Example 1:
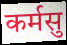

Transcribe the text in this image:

कर्मसु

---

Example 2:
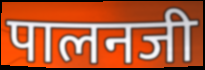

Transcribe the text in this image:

पालनजी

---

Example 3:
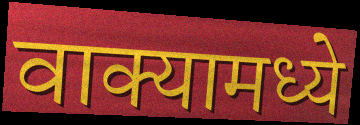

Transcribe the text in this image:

वाक्यामध्ये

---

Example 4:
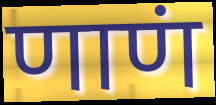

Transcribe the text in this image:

णाणं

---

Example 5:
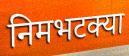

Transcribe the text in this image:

निमभटक्या